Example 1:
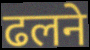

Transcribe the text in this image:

ढलने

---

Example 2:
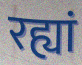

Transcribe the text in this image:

रह्यां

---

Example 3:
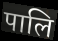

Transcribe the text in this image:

पालि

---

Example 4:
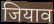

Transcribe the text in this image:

जियाव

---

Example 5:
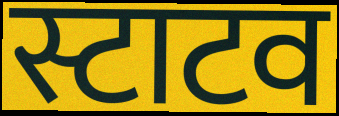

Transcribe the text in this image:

स्टाटव